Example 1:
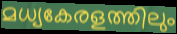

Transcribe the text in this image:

മധ്യകേരളത്തിലും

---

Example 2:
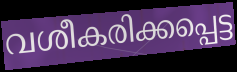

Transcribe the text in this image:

വശീകരിക്കപ്പെട്ട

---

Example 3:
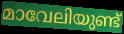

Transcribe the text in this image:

മാവേലിയുണ്ട്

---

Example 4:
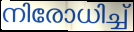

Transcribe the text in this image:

നിരോധിച്ച്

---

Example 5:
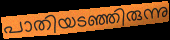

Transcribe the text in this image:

പാതിയടഞ്ഞിരുന്നു